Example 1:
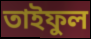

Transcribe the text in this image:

তাইফুল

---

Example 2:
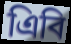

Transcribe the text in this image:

এিবি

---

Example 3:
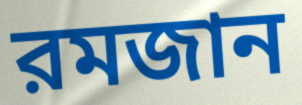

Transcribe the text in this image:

রমজান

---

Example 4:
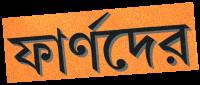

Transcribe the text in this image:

ফার্ণদের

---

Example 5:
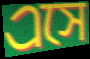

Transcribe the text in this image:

এসে